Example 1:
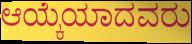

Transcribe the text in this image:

ಆಯ್ಕೆಯಾದವರು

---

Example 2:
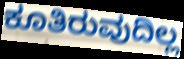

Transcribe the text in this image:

ಕೂತಿರುವುದಿಲ್ಲ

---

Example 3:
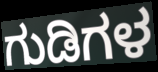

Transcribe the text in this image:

ಗುಡಿಗಳ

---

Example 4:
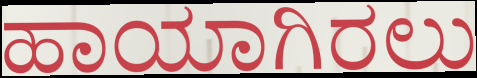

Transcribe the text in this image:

ಹಾಯಾಗಿರಲು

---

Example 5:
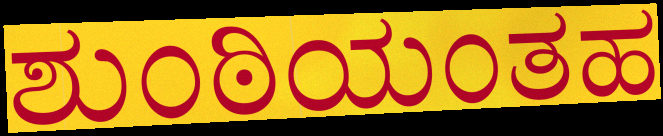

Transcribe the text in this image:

ಶುಂಠಿಯಂತಹ